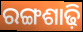
ରଙ୍ଗଶାଢ଼ି